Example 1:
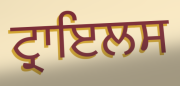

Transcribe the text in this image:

ਟ੍ਰਾਇਲਸ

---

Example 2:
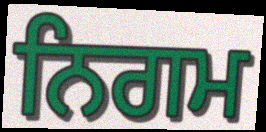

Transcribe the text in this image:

ਨਿਗਮ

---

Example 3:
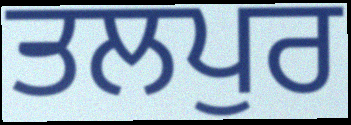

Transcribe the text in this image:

ਤਲਪੁਰ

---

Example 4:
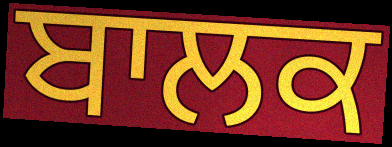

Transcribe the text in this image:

ਬਾਲਕ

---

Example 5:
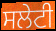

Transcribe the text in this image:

ਸਲੇਟੀ